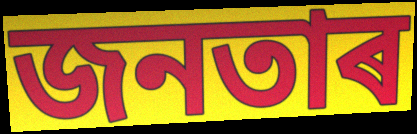
জনতাৰ